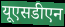
यूएसडीएन